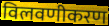
विलवणीकरण